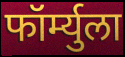
फॉर्म्युला